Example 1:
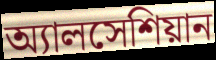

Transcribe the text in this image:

অ্যালসেশিয়ান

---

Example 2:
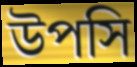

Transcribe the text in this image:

উপসি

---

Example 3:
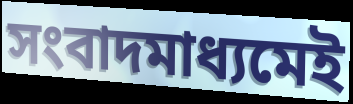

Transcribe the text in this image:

সংবাদমাধ্যমেই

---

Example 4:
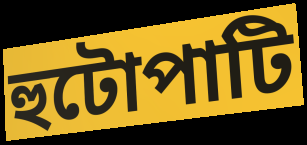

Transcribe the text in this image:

হুটোপাটি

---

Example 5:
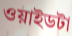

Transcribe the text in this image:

ওয়াইডটা